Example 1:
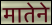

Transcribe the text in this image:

मातेने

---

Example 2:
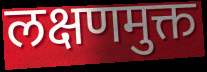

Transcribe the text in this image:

लक्षणमुक्त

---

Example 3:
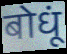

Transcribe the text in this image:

बोधूं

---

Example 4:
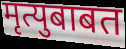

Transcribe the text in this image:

मृत्युबाबत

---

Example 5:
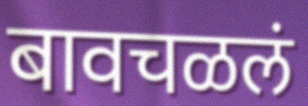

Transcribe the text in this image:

बावचळलं